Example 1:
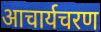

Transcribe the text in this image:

आचार्यचरण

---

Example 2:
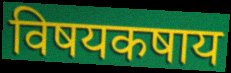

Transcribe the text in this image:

विषयकषाय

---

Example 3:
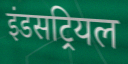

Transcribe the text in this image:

इंडसट्रियल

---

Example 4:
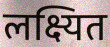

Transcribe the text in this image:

लक्ष्यित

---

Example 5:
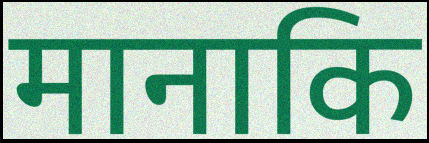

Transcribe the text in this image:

मानाकि